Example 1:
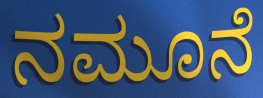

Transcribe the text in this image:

ನಮೂನೆ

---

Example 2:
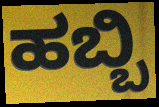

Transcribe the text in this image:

ಹಬ್ಬಿ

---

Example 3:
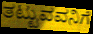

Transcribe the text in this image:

ತಟ್ಟುವವನಿಗೆ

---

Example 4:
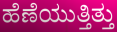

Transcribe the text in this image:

ಹೆಣೆಯುತ್ತಿತ್ತು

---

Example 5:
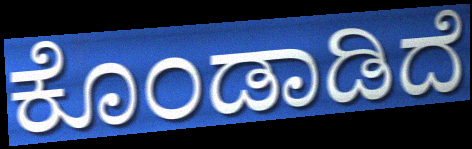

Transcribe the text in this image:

ಕೊಂಡಾಡಿದೆ